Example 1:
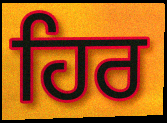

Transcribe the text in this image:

ਹਿਰ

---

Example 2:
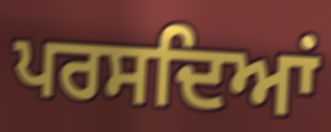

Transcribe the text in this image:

ਪਰਸਦਿਆਂ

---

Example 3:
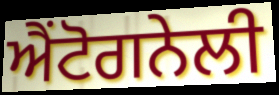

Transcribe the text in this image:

ਐਂਟੋਗਨੇਲੀ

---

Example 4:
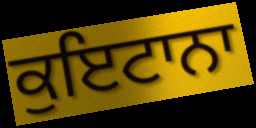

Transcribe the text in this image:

ਕੁਇਟਾਨਾ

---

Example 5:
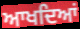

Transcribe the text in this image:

ਆਖਦਿਆਂ